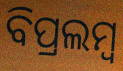
ବିପ୍ରଲମ୍ବ